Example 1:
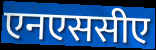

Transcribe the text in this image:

एनएससीए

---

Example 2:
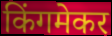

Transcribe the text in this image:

किंगमेकर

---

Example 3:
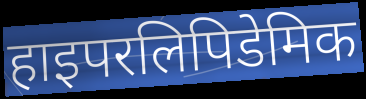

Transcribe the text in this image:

हाइपरलिपिडेमिक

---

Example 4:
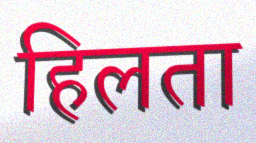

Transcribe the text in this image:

हिलता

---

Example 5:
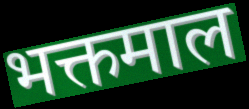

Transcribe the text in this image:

भक्तमाल